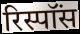
रिस्पॉंस